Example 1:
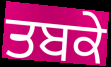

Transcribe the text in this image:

ਤਬਕੇ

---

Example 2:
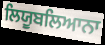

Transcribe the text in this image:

ਲਿਯੂਬਲਿਆਨਾ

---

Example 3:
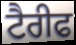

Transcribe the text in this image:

ਟੈਰੀਫ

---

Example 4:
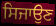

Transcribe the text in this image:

ਸਿਜਾਉਣ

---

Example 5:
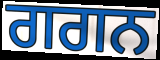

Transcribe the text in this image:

ਗਗਨ